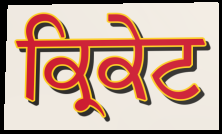
ਕ੍ਰਿਕੇਟ